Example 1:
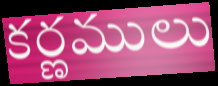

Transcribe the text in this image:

కర్ణములు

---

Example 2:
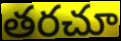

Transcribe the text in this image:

తరచూ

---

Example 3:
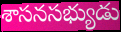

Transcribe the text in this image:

శాసనసభ్యుడు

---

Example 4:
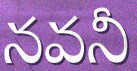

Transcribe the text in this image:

నవనీ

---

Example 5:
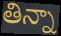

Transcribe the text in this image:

తిన్నా